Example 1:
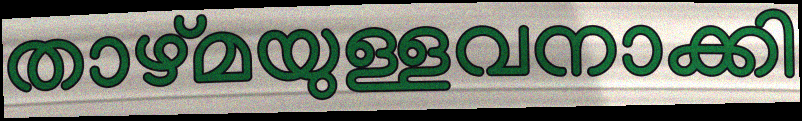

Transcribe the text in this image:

താഴ്മയുള്ളവനാക്കി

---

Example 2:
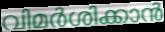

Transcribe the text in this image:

വിമർശിക്കാൻ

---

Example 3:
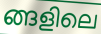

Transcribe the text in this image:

ങ്ങളിലെ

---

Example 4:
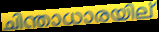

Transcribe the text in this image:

ചിന്താധാരയില്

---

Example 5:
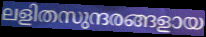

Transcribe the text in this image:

ലളിതസുന്ദരങ്ങളായ